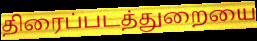
திரைப்படத்துறையை